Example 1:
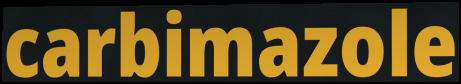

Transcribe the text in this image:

carbimazole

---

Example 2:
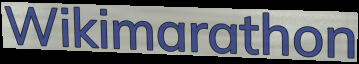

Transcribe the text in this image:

Wikimarathon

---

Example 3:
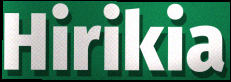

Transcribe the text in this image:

Hirikia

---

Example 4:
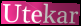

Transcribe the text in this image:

Utekar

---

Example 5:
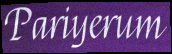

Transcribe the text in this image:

Pariyerum